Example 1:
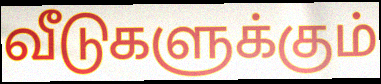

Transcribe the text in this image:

வீடுகளுக்கும்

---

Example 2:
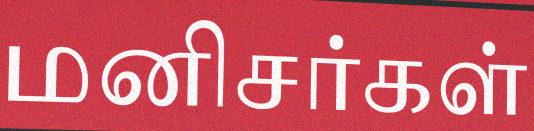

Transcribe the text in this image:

மனிசர்கள்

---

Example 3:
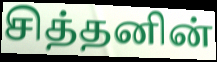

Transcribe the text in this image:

சித்தனின்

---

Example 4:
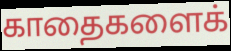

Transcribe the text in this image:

காதைகளைக்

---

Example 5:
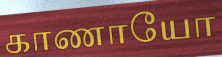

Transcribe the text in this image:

காணாயோ